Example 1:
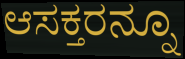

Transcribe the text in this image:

ಆಸಕ್ತರನ್ನೂ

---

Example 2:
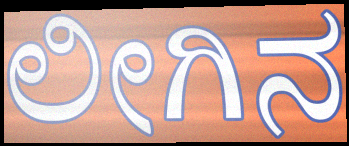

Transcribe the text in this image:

ಲೀಗಿನ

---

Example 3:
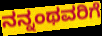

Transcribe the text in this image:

ನನ್ನಂಥವರಿಗೆ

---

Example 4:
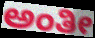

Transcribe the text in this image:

ಅಂತೀ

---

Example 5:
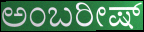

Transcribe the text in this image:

ಅಂಬರೀಷ್